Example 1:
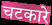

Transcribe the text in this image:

चटकारे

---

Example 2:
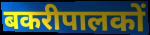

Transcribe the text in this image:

बकरीपालकों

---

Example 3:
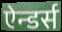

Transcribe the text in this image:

ऐन्डर्स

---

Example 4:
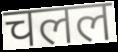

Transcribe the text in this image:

चलल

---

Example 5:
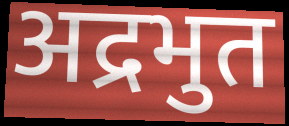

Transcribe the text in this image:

अद्रभुत